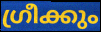
ഗ്രീക്കും